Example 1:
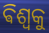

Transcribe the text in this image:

ଵିଶ୍ଵକୁ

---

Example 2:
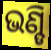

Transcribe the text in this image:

ଭଣ୍ଡି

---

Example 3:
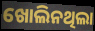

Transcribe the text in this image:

ଖୋଲିନଥିଲା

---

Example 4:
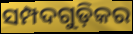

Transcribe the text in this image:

ସମ୍ପଦଗୁଡ଼ିକର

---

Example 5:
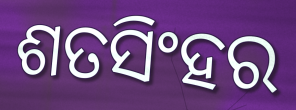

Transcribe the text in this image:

ଶତସିଂହର